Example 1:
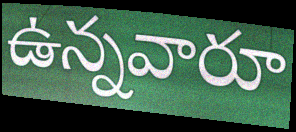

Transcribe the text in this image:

ఉన్నవారూ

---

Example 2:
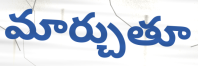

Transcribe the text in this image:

మార్చుతూ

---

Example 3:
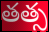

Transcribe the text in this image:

తత్స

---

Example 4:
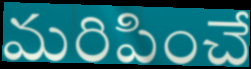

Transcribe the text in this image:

మరిపించే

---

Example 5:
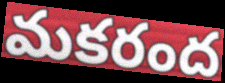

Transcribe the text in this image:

మకరంద